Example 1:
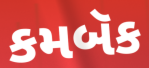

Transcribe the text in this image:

કમબૅક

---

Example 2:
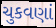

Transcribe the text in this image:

ચુકવણાં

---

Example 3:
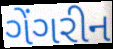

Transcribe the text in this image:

ગેંગરીન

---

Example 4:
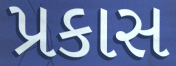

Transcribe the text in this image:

પ્રકાસ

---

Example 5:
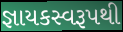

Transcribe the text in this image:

જ્ઞાયકસ્વરૂપથી